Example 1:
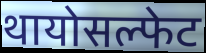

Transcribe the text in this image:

थायोसल्फेट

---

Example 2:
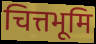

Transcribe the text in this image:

चित्तभूमि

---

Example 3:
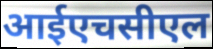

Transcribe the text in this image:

आईएचसीएल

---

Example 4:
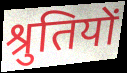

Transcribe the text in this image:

श्रुतियों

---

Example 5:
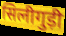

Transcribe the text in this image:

सिलीगुड़ी